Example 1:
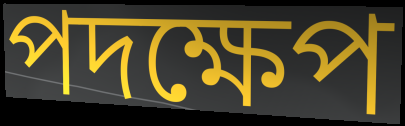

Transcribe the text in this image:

পদক্ষেপ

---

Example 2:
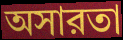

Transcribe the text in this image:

অসারতা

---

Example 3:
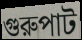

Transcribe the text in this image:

গুরুপাট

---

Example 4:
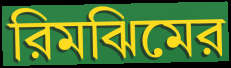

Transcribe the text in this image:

রিমঝিমের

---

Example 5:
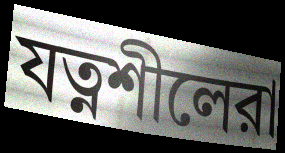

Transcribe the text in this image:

যত্নশীলেরা